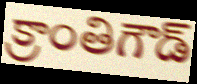
క్రాంతిగౌడ్